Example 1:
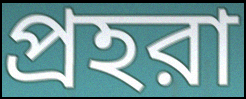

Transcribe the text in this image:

প্রহরা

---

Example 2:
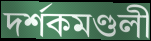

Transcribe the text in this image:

দর্শকমণ্ডলী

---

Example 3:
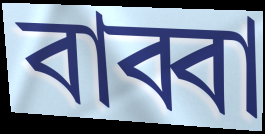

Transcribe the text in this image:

বাব্বা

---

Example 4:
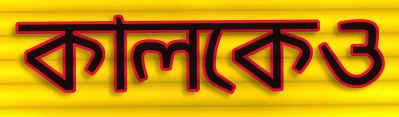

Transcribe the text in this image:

কালকেও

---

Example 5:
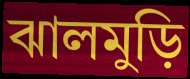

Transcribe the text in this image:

ঝালমুড়ি